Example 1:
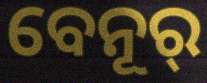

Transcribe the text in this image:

ବେନୂର୍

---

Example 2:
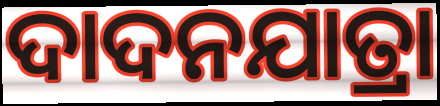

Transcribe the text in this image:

ଦାଦନଯାତ୍ରା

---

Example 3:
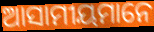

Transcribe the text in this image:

ଆସାମୀୟମାନେ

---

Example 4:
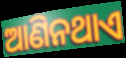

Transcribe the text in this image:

ଆଣିନଥାଏ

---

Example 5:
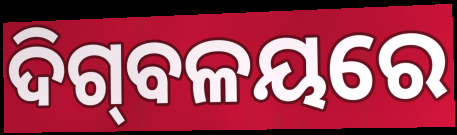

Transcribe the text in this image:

ଦିଗ୍‍ବଳୟରେ